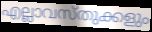
എല്ലാവസ്തുക്കളും